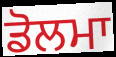
ਡੋਲਮਾ